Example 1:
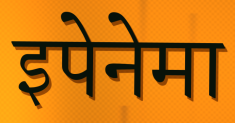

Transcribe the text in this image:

इपेनेमा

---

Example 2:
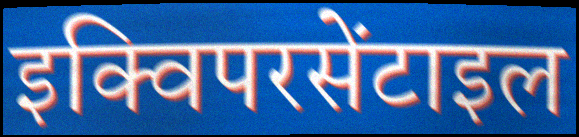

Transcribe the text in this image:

इक्विपरसेंटाइल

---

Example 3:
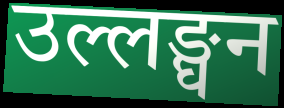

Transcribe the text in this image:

उल्लङ्घन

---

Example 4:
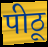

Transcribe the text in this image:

पीठू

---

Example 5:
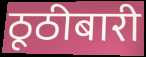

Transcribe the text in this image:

ठूठीबारी